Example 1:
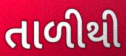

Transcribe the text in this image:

તાળીથી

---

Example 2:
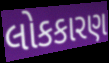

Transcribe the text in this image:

લોકકારણ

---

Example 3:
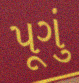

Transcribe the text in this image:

પૂગું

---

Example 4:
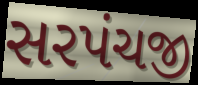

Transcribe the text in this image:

સરપંચજી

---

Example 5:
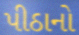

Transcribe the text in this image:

પીઠાનો